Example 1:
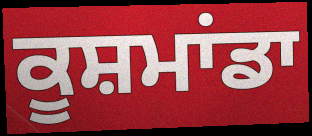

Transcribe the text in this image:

ਕੂਸ਼ਮਾਂਡਾ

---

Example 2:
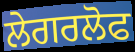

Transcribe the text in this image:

ਲੇਗਰਲੋਫ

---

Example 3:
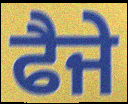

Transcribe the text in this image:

ਫੈਜੇ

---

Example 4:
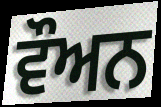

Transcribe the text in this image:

ਵੌਅਨ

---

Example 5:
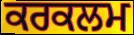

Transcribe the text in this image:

ਕਰਕਲਮ